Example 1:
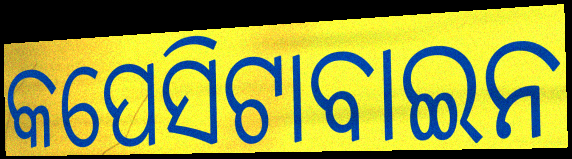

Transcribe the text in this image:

କପେସିଟାବାଇନ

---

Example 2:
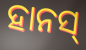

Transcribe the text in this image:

ହାନସ୍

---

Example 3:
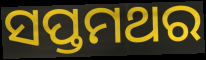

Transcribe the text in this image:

ସପ୍ତମଥର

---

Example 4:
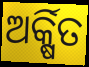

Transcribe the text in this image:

ଅର୍କ୍ଷିତ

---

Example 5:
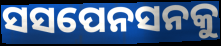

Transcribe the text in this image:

ସସପେନସନକୁ